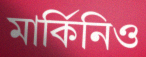
মার্কিনিও